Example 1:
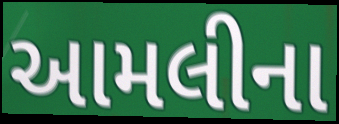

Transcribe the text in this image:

આમલીના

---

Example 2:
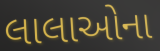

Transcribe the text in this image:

લાલાઓના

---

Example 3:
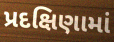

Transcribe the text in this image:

પ્રદક્ષિણામાં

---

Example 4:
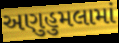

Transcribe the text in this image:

અણુહુમલામાં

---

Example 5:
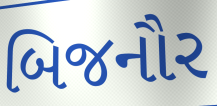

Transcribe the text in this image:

બિજનૌર